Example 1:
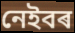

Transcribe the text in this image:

নেইবৰ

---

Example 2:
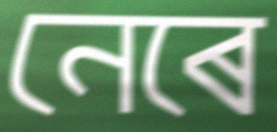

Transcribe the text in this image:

নেৰে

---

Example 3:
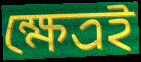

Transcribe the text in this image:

ক্ষেত্ৰই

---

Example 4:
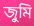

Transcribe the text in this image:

জুমি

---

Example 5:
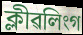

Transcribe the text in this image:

ক্লীৱলিংগ